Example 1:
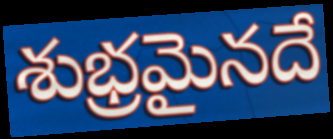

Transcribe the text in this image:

శుభ్రమైనదే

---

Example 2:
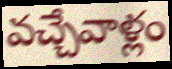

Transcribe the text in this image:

వచ్చేవాళ్లం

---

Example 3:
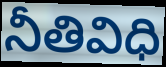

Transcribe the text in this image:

నీతివిధి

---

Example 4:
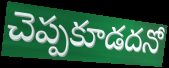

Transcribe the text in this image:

చెప్పకూడదనో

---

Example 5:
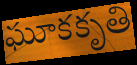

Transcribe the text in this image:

ఘూకకృతి